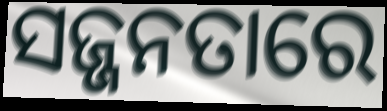
ସଜ୍ଜନତାରେ